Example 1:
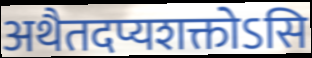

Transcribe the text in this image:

अथैतदप्यशक्तोऽसि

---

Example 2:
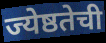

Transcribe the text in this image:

ज्येष्ठतेची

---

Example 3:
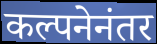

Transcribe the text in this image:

कल्पनेनंतर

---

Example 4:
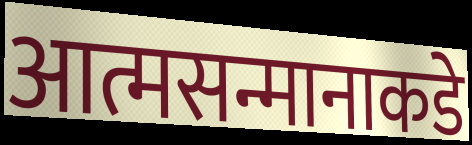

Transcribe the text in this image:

आत्मसन्मानाकडे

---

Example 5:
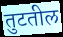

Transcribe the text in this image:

तुटतील